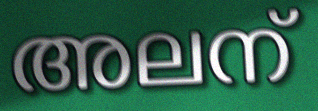
അലന്